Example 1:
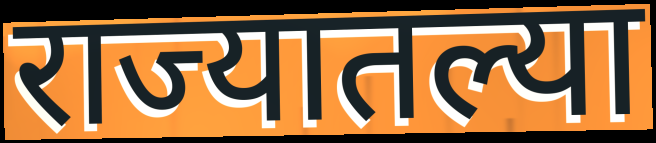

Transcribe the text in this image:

राज्यातल्या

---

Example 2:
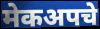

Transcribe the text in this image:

मेकअपचे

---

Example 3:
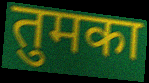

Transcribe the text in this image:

तुमका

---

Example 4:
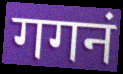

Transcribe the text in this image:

गगनं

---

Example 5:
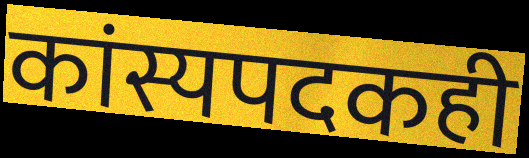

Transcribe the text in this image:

कांस्यपदकही